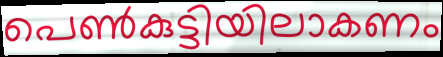
പെൺകുട്ടിയിലാകണം